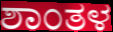
ಶಾಂತಳ